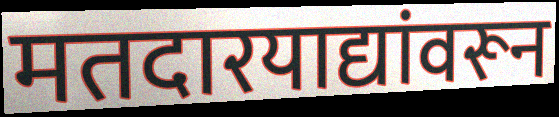
मतदारयाद्यांवरून